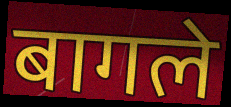
बागले